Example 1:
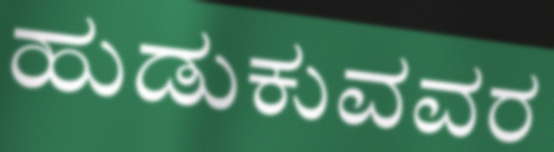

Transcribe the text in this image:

ಹುಡುಕುವವರ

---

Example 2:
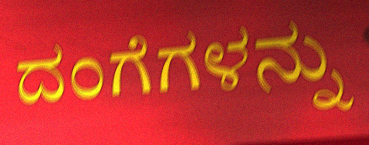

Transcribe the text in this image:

ದಂಗೆಗಳನ್ನು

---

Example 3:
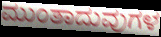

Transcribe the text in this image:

ಮುಂತಾದುವುಗಳ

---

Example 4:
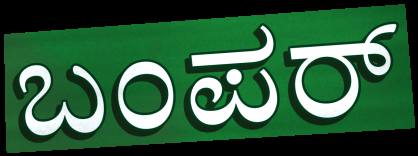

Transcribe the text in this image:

ಬಂಪರ್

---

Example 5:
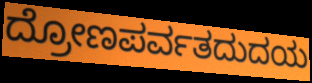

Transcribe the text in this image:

ದ್ರೋಣಪರ್ವತದುದಯ